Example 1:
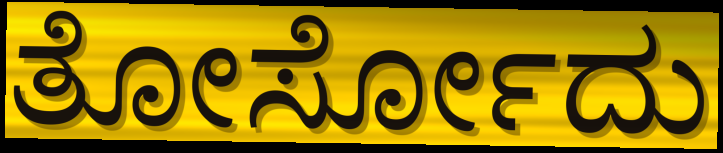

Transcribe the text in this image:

ತೋರ್ಸೋದು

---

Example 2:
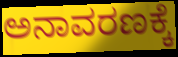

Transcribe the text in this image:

ಅನಾವರಣಕ್ಕೆ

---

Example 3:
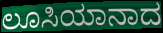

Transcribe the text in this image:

ಲೂಸಿಯಾನಾದ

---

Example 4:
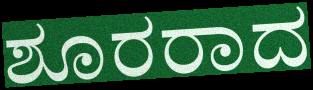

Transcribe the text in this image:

ಶೂರರಾದ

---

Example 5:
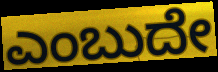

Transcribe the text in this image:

ಎಂಬುದೇ